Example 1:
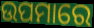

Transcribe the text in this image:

ଉପମାରେ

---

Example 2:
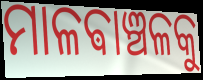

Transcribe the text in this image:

ମାଳଵାଞ୍ଚଳକୁ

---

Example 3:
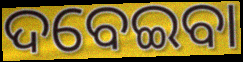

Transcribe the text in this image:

ଦବେଇବା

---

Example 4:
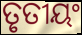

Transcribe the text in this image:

ତୃତୀୟଂ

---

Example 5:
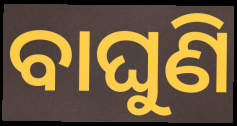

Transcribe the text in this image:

ବାଘୁଣି